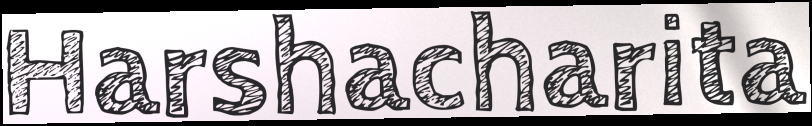
Harshacharita